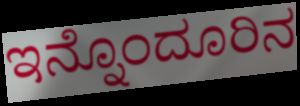
ಇನ್ನೊಂದೂರಿನ